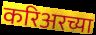
करिअरच्या